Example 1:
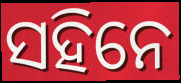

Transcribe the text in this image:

ସହିନେ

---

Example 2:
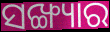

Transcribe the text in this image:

ସଙ୍ଖ୍ୟାର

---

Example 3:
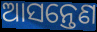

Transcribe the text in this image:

ଆସନ୍ତେଣ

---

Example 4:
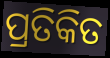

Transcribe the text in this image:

ପ୍ରତିକିତ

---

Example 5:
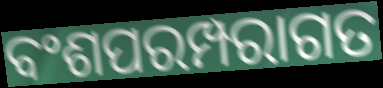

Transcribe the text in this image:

ବଂଶପରମ୍ପରାଗତ